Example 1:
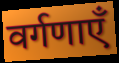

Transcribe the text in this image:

वर्गणाएँ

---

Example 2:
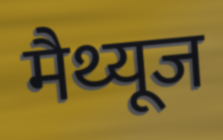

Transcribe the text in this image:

मैथ्‍यूज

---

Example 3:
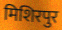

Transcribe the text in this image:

मिशिरपुर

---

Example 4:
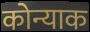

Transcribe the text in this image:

कोन्याक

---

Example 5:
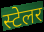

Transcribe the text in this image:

स्टेलर